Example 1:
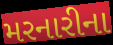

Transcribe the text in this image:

મરનારીના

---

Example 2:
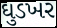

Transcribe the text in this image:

ઘુડખર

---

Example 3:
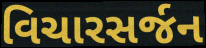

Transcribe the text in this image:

વિચારસર્જન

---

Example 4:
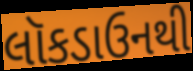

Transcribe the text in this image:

લૉકડાઉનથી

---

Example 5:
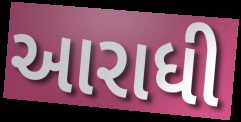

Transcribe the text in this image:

આરાધી